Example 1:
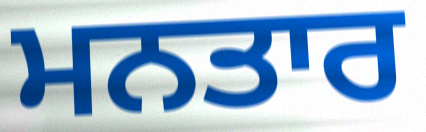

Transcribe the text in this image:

ਮਨਤਾਰ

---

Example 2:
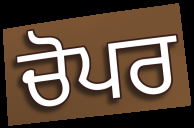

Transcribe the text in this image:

ਚੋਪਰ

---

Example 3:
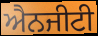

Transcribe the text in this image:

ਐਨਜੀਟੀ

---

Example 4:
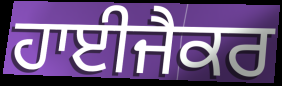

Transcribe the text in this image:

ਹਾਈਜੈਕਰ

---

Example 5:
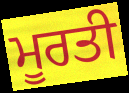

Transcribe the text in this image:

ਮੂਰਤੀ